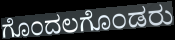
ಗೊಂದಲಗೊಂಡರು